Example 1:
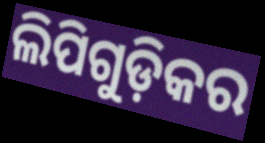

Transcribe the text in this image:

ଲିପିଗୁଡ଼ିକର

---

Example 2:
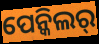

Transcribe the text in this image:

ପେନ୍କିଲର୍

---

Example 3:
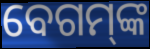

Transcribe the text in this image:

ବେଗମ୍‌ଙ୍କ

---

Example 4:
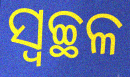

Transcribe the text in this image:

ସ୍ବଚ୍ଛଳ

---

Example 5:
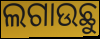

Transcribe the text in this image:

ଲଗାଉଛୁ